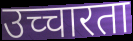
उच्चारता